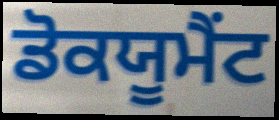
ਡੋਕਯੂਮੈਂਟ